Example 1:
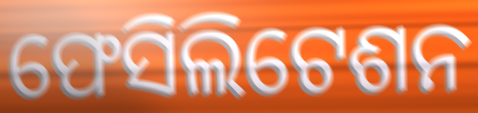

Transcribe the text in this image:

ଫେସିଲିଟେଶନ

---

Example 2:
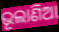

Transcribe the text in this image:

ଭୂଲାଣିଆ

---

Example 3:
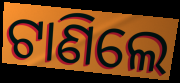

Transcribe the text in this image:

ଟାଣିଲେ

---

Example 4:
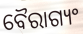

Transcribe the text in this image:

ବୈରାଗ୍ୟଂ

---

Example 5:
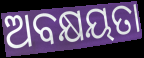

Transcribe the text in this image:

ଅବକ୍ଷୟତା